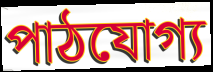
পাঠযোগ্য